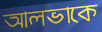
আলভাকে